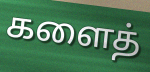
களைத்